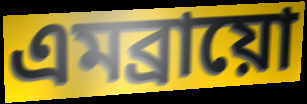
এমব্রায়ো